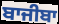
ਬਾਜੀਬਾ